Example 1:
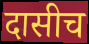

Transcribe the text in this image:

दासीच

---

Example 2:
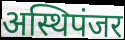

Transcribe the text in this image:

अस्थिपंजर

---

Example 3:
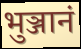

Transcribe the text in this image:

भुञ्जानं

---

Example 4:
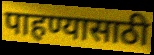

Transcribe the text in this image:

पाहण्यासाठी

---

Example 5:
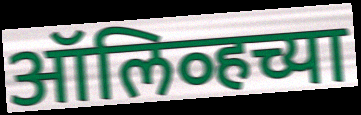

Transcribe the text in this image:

ऑलिव्हच्या